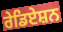
ਰੇਡਿਏਸ਼ਨ